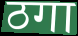
ठगा